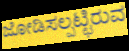
ಜೋಡಿಸಲ್ಪಟ್ಟಿರುವ